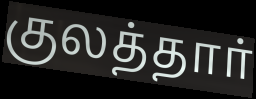
குலத்தார்